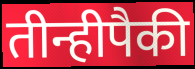
तीन्हीपैकी